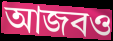
আজবও